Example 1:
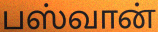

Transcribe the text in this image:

பஸ்வான்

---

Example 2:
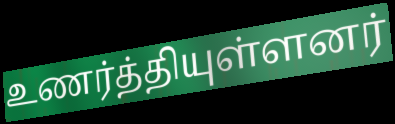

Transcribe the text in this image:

உணர்த்தியுள்ளனர்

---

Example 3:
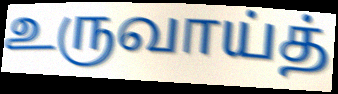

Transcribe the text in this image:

உருவாய்த்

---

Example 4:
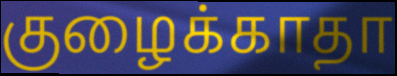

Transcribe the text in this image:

குழைக்காதா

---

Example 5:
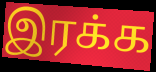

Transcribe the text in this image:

இரக்க